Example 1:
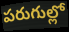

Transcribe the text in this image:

పరుగుల్లో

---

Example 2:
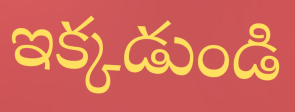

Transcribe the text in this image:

ఇక్కడుండి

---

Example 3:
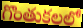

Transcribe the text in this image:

గొంతుకలలో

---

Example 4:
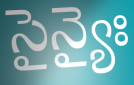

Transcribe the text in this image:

సైన్యైః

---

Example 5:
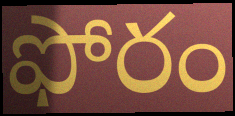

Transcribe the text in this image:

ఫోరం